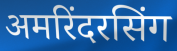
अमरिंदरसिंग